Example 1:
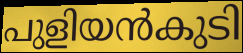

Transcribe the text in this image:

പുളിയൻകുടി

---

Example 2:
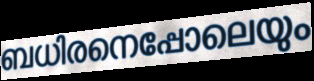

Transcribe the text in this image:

ബധിരനെപ്പോലെയും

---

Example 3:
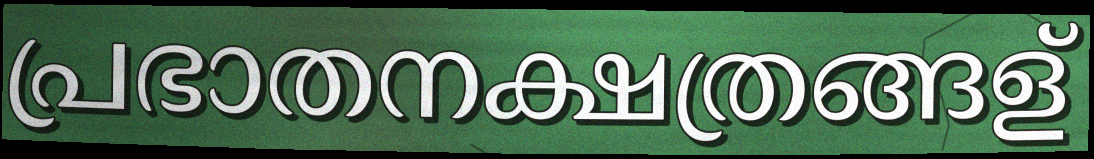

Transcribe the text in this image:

പ്രഭാതനക്ഷത്രങ്ങള്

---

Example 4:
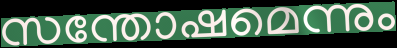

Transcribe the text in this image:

സന്തോഷമെന്നും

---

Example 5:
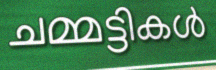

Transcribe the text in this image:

ചമ്മട്ടികൾ